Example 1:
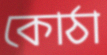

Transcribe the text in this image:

কোঠা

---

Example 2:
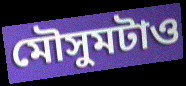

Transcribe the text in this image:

মৌসুমটাও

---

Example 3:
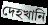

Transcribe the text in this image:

দেহখানি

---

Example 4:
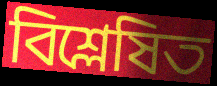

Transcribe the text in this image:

বিশ্লেষিত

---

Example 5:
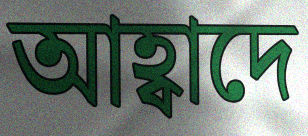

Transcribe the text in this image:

আহ্বাদে